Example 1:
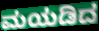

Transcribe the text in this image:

ಮಯಡಿದ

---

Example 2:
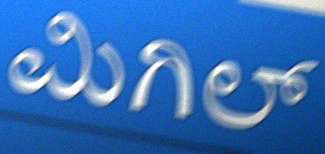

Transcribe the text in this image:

ಮಿಗಿಲ್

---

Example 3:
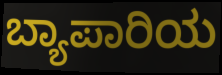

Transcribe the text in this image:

ಬ್ಯಾಪಾರಿಯ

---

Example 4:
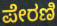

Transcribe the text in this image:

ಪೇರಣಿ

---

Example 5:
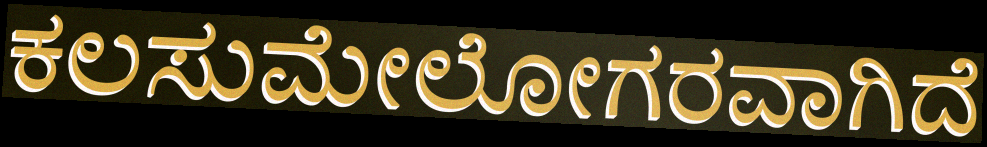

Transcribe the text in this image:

ಕಲಸುಮೇಲೋಗರವಾಗಿದೆ